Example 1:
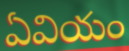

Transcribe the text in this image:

ఏవియం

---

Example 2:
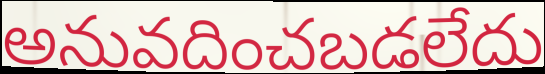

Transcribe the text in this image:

అనువదించబడలేదు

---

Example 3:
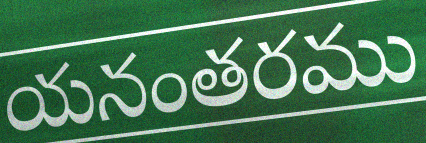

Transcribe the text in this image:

యనంతరము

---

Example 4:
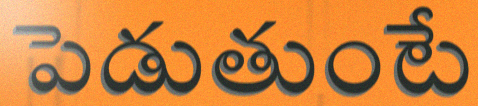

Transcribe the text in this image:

పెడుతుంటే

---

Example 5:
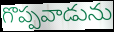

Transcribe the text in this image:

గొప్పవాడును